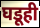
घडूही